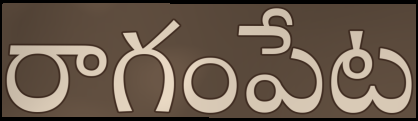
రాగంపేట